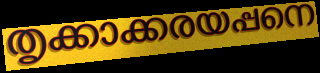
തൃക്കാക്കരയപ്പനെ